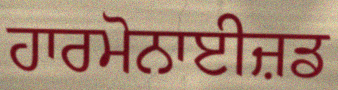
ਹਾਰਮੋਨਾਈਜ਼ਡ